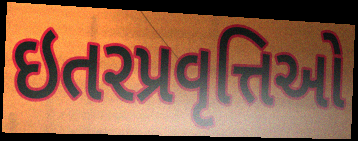
ઇતરપ્રવૃત્તિઓ